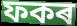
ফকৰ